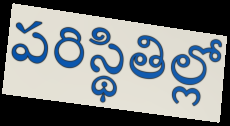
పరిస్థితిల్లో